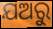
ଯଅରୁ